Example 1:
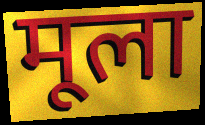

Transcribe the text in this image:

मूला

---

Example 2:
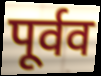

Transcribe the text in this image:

पूर्वव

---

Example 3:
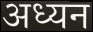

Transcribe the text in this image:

अध्यन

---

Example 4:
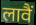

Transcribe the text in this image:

लावैं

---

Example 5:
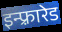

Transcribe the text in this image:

इन्फ़्रारेड